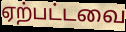
ஏற்பட்டவை